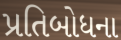
પ્રતિબોધના